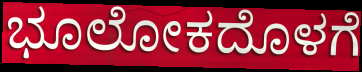
ಭೂಲೋಕದೊಳಗೆ